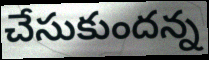
చేసుకుందన్న